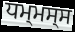
ਧਮ੍ਮਸ੍ਸ